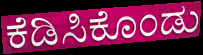
ಕೆಡಿಸಿಕೊಂಡು